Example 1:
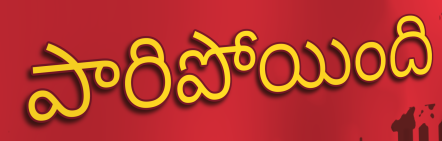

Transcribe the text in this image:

పారిపోయింది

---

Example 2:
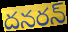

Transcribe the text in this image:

దనరన్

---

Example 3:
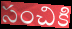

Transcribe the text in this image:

సంచికి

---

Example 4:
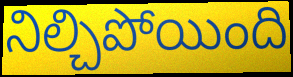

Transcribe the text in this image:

నిల్చిపోయింది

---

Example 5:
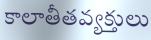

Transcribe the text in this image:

కాలాతీతవ్యక్తులు